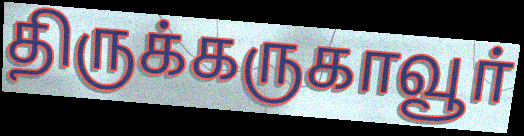
திருக்கருகாவூர்